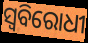
ସ୍ୱବିରୋଧୀ